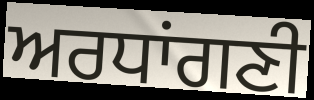
ਅਰਧਾਂਗਣੀ